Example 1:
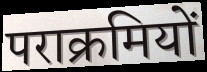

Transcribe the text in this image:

पराक्रमियों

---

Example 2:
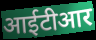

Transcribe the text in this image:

आईटीआर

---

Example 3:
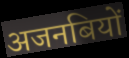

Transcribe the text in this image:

अजनबियों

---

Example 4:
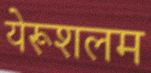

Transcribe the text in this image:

येरूशलम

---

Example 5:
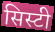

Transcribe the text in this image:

सिस्टी